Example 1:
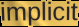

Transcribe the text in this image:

implicit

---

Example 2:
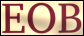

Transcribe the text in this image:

EOB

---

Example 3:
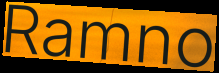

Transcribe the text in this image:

Ramno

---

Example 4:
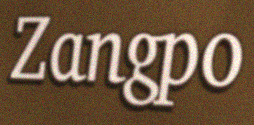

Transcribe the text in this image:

Zangpo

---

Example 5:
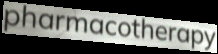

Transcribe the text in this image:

pharmacotherapy